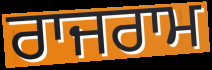
ਰਾਜਰਾਮ